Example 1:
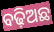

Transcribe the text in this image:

ବଢ଼ିଅଛ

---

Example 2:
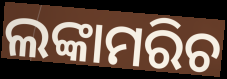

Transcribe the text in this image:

ଲଙ୍କାମରିଚ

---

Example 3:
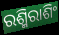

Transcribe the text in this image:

ରଶ୍ମିରାଶିଂ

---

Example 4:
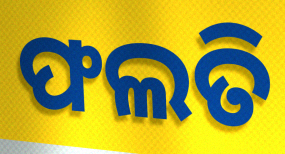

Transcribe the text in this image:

ଫଲତି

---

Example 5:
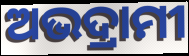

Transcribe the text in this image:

ଅଭଦ୍ରାମୀ